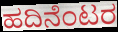
ಹದಿನೆಂಟರ